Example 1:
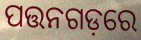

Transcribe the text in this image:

ପତ୍ତନଗଡ଼ରେ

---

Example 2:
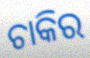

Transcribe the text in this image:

ଚାକିର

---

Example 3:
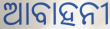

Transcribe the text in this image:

ଆବାହନୀ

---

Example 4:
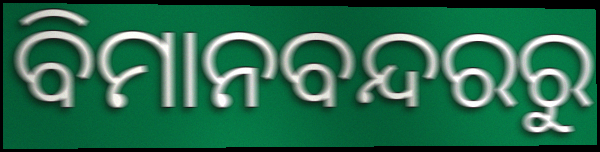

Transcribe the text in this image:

ବିମାନବନ୍ଦରରୁ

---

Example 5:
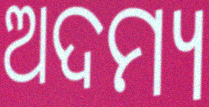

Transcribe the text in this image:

ଅଦମ୍ୟ